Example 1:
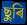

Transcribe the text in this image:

ছুৰি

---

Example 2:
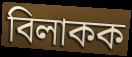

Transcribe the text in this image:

বিলাকক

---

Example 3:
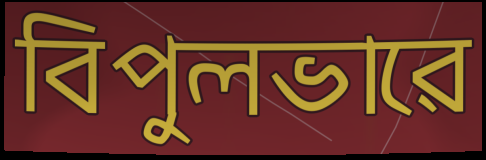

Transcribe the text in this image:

বিপুলভাৱে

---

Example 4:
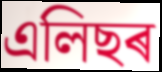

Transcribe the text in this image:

এলিছৰ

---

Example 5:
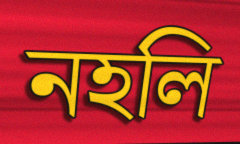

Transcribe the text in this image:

নহলি